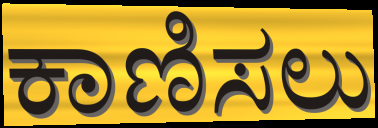
ಕಾಣಿಸಲು